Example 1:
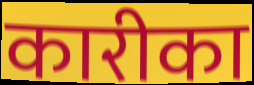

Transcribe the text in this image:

कारीका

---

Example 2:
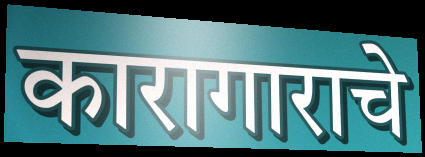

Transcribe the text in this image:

कारागाराचे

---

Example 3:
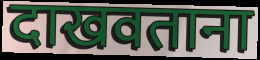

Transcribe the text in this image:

दाखवताना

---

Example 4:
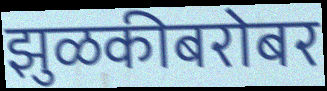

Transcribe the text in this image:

झुळकीबरोबर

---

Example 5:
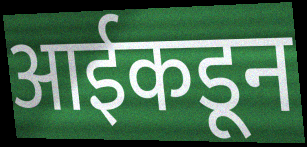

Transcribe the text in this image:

आईकडून